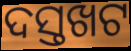
ଦସ୍ତଖଟ